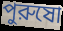
পুৰুষো